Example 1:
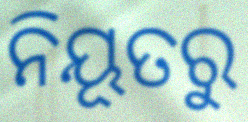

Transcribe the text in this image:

ନିୟୂତରୁ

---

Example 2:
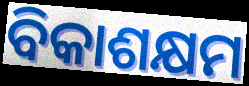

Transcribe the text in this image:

ବିକାଶକ୍ଷମ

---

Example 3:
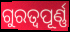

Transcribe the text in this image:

ଗୁରତ୍ୱପୂର୍ଣ୍ଣ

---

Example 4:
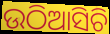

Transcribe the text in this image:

ଉଠିଆସିଚି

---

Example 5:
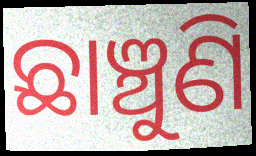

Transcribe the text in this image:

ଛାଞ୍ଚୁଣି